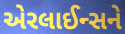
એરલાઈન્સને